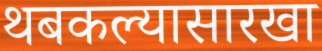
थबकल्यासारखा